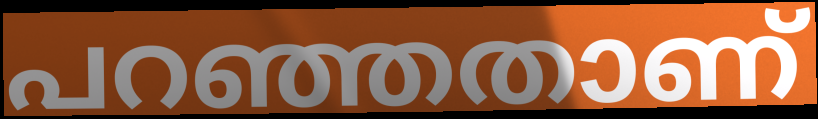
പറഞ്ഞതാണ്